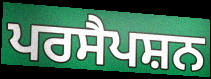
ਪਰਸੈਪਸ਼ਨ